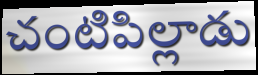
చంటిపిల్లాడు